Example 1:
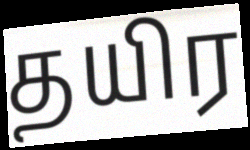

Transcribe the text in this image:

தயிர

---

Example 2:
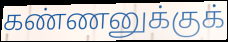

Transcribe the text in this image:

கண்ணனுக்குக்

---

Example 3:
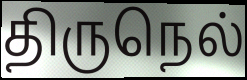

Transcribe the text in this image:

திருநெல்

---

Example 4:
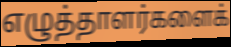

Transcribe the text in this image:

எழுத்தாளர்களைக்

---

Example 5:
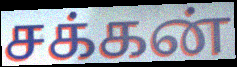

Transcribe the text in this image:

சக்கன்